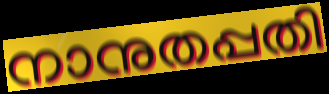
നാനുതപ്പതി